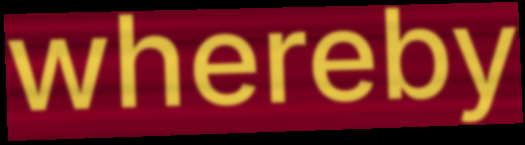
whereby